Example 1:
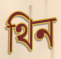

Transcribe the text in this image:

থিন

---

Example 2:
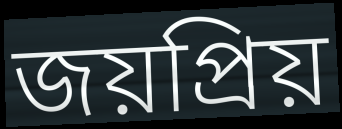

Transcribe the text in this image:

জয়প্রিয়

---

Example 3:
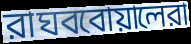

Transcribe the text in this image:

রাঘববোয়ালেরা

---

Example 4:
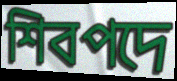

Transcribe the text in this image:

শিবপদে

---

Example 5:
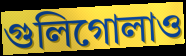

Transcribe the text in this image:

গুলিগোলাও